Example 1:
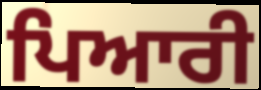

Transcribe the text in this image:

ਪਿਆਰੀ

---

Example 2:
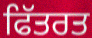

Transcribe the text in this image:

ਫਿੱਤਰਤ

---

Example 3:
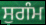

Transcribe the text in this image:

ਸੁਗੰਮ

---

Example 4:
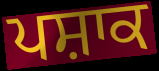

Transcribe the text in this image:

ਪਸ਼ਾਕ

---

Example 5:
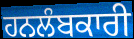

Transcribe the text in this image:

ਹਨਲੰਬਕਾਰੀ